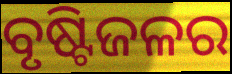
ବୃଷ୍ଟିଜଳର